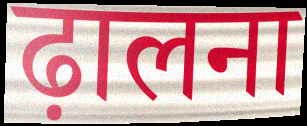
ढ़ालना